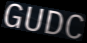
GUDC